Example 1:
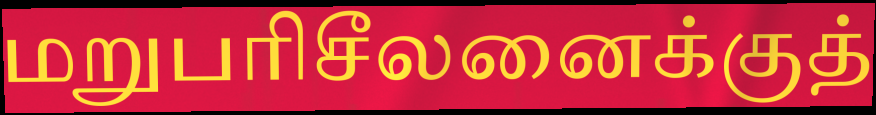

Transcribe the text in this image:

மறுபரிசீலனைக்குத்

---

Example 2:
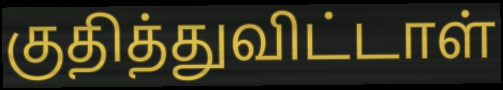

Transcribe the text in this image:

குதித்துவிட்டாள்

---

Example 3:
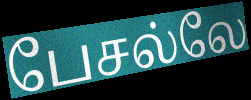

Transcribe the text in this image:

பேசல்லே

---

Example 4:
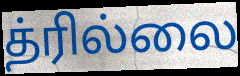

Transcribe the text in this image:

த்ரில்லை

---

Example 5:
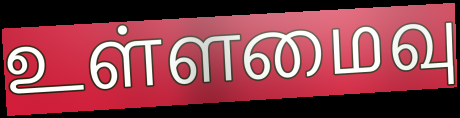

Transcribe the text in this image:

உள்ளமைவு